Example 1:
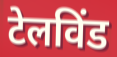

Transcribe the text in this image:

टेलविंड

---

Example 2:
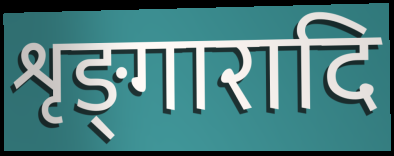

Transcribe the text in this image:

शृङ्गारादि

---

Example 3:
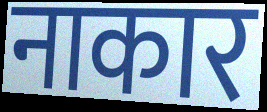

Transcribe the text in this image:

नाकार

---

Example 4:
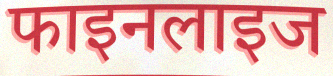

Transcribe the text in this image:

फाइनलाइज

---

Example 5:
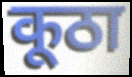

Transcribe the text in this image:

कूठा